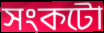
সংকটো